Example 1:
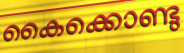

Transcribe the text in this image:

കൈക്കൊണ്ടു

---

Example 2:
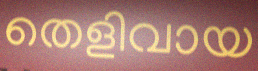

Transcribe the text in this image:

തെളിവായ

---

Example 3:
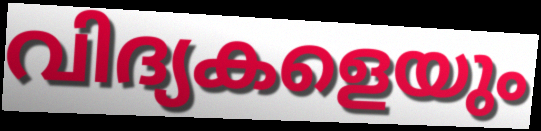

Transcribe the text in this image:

വിദ്യകളെയും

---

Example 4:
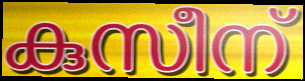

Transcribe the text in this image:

കുസീന്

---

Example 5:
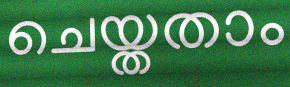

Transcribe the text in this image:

ചെയ്തതാം